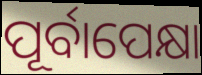
ପୂର୍ବାପେକ୍ଷା